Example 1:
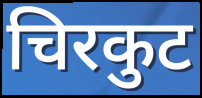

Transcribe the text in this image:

चिरकुट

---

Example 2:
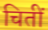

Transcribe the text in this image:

चितीं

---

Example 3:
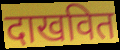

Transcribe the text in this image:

दाखवित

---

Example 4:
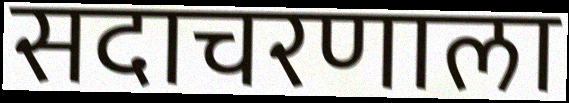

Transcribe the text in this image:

सदाचरणाला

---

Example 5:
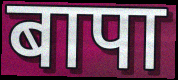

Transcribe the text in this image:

बापा